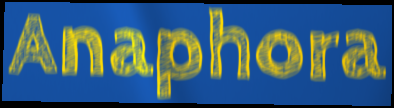
Anaphora